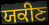
ਯਕੀਣ